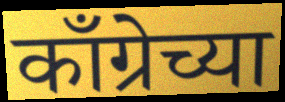
काँग्रेच्या